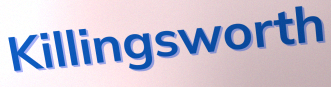
Killingsworth